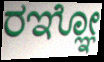
ರಞ್ಞೋ